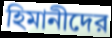
হিমানীদের